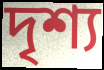
দৃশ্য